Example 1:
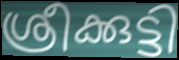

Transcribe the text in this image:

ശ്രീക്കുട്ടി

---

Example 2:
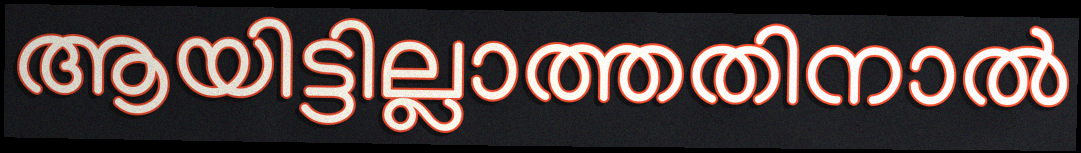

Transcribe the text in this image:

ആയിട്ടില്ലാത്തതിനാൽ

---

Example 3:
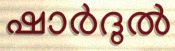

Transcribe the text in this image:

ഷാർദുൽ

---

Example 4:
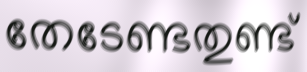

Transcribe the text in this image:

തേടേണ്ടതുണ്ട്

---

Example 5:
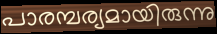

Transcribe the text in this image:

പാരമ്പര്യമായിരുന്നു